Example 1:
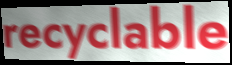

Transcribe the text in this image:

recyclable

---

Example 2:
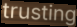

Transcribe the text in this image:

trusting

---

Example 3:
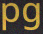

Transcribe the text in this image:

pg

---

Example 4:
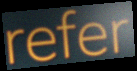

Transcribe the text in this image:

refer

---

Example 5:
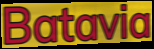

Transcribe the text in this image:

Batavia